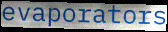
evaporators